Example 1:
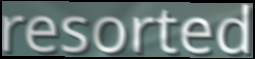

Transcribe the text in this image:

resorted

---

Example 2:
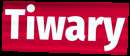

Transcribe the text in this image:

Tiwary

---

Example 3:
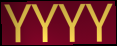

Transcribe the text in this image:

YYYY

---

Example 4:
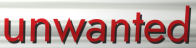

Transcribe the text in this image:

unwanted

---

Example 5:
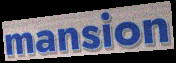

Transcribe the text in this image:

mansion